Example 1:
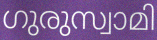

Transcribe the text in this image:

ഗുരുസ്വാമി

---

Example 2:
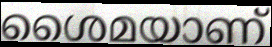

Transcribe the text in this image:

ശൈമയാണ്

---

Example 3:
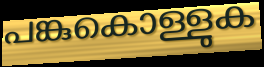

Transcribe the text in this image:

പങ്കുകൊള്ളുക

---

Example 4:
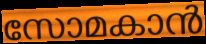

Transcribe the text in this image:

സോമകാൻ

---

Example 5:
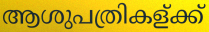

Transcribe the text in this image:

ആശുപത്രികള്ക്ക്